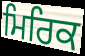
ਮਿਰਿਕ